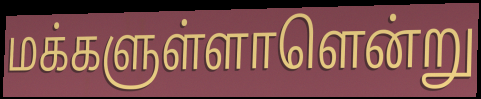
மக்களுள்ளாளென்று